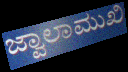
ಜ್ವಾಲಾಮುಖಿ